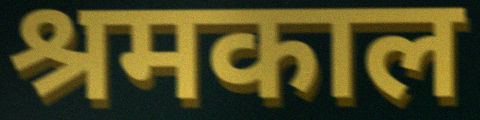
श्रमकाल